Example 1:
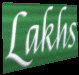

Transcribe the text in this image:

Lakhs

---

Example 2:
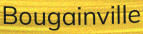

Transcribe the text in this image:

Bougainville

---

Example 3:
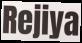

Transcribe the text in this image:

Rejiya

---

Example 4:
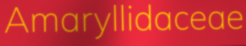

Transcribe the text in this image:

Amaryllidaceae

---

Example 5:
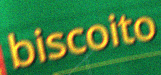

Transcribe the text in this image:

biscoito